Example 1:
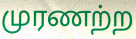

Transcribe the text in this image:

முரணற்ற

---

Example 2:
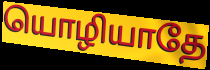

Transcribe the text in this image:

யொழியாதே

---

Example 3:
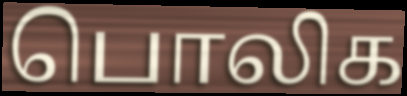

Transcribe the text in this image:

பொலிக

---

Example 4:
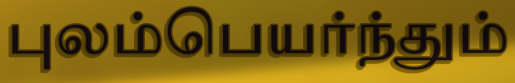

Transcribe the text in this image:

புலம்பெயர்ந்தும்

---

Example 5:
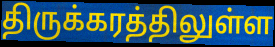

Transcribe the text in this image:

திருக்கரத்திலுள்ள